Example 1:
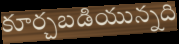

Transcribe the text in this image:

కూర్చబడియున్నది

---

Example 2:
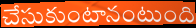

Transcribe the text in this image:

చేసుకుంటానంటుంది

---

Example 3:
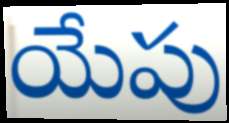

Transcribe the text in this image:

యేపు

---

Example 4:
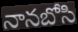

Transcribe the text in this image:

నానబోసి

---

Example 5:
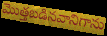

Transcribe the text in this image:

మొత్తబడినవానిగాను